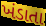
ખંડાતા